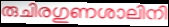
രുചിരഗുണശാലിനി